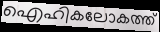
ഐഹികലോകത്ത്